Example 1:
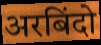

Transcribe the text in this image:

अरबिंदो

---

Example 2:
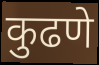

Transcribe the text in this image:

कुढणे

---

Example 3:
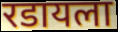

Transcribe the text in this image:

रडायला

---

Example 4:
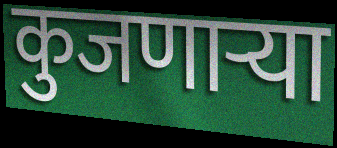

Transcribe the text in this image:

कुजणाऱ्या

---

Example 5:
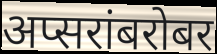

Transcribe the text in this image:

अप्सरांबरोबर